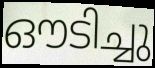
ഔടിച്ചു